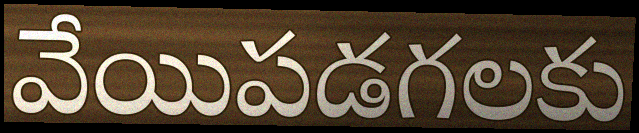
వేయిపడగలకు